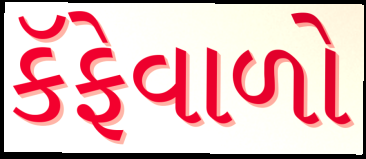
કૅફેવાળો